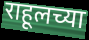
राहूलच्या